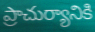
ప్రాచుర్యానికి